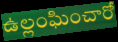
ఉల్లంఘించారో